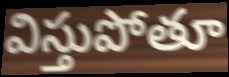
విస్తుపోతూ